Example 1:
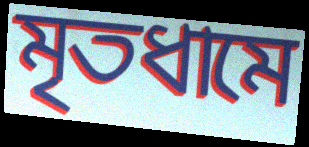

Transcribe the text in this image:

মৃতধামে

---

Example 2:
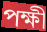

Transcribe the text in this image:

পক্ষী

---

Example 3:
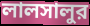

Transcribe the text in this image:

লালসালুর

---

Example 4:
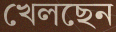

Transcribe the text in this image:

খেলছেন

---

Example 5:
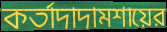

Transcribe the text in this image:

কর্তাদাদামশায়ের